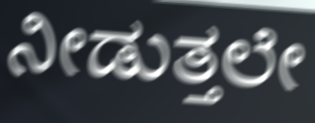
ನೀಡುತ್ತಲೇ